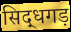
सिद्धगड़